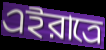
এইরাত্রে